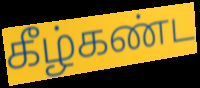
கீழ்கண்ட